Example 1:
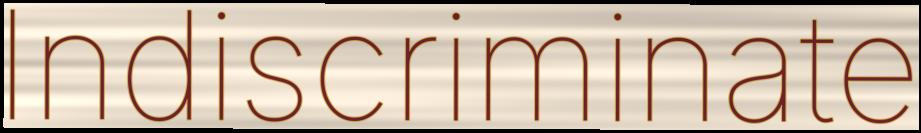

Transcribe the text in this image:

Indiscriminate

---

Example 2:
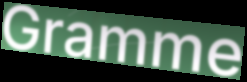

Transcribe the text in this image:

Gramme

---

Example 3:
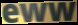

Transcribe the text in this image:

eww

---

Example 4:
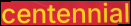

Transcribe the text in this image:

centennial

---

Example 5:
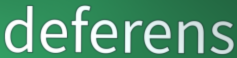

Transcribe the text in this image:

deferens